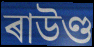
ৰাউণ্ড